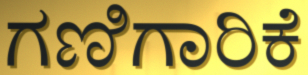
ಗಣಿಗಾರಿಕೆ